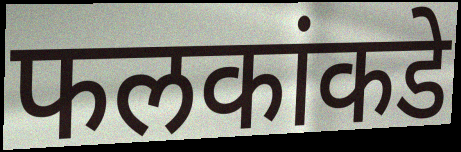
फलकांकडे